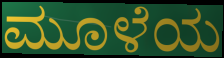
ಮೂಳೆಯ